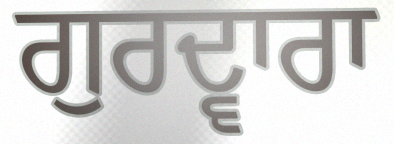
ਗੁਰਦ੍ਵਾਰਾ